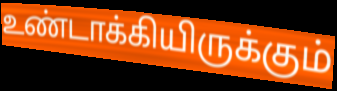
உண்டாக்கியிருக்கும்